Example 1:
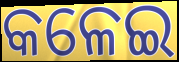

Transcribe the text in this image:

କଳେଇ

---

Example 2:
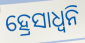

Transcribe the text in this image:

ହ୍ରେସାଧ୍ୱନି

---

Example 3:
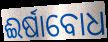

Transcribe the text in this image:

ଈର୍ଷାବୋଧ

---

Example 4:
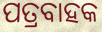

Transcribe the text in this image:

ପତ୍ରବାହକ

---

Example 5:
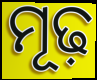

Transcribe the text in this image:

ମୂଢ଼